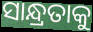
ସାନ୍ଧ୍ରତାକୁ